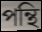
পন্থি